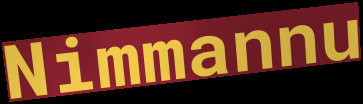
Nimmannu